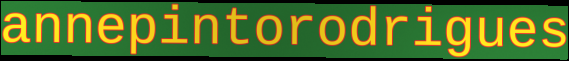
annepintorodrigues